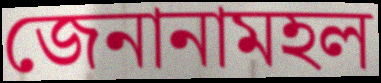
জেনানামহল